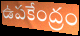
ఉపకేంద్రం